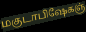
மகுடாபிஷேகஞ்